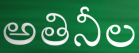
అతినీల